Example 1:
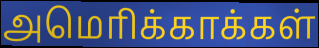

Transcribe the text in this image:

அமெரிக்காக்கள்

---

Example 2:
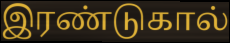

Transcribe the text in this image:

இரண்டுகால்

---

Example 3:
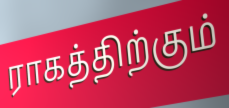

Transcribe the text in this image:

ராகத்திற்கும்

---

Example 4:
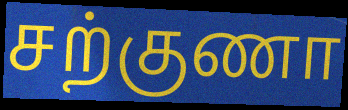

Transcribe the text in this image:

சற்குணா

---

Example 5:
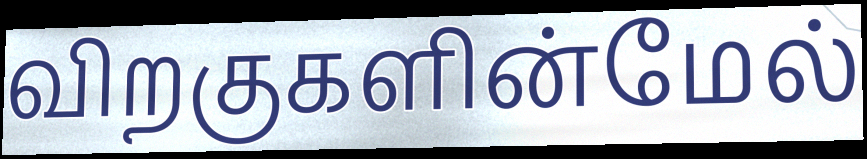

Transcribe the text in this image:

விறகுகளின்மேல்